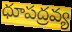
ధూపద్రవ్య